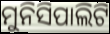
ମୁନିସିପାଲିଟି